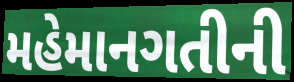
મહેમાનગતીની